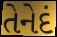
તેનેદં